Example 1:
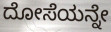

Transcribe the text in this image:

ದೋಸೆಯನ್ನೇ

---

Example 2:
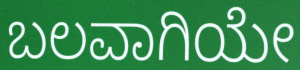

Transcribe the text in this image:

ಬಲವಾಗಿಯೇ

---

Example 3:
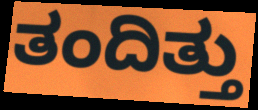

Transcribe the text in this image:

ತಂದಿತ್ತು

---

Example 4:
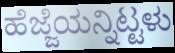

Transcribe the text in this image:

ಹೆಜ್ಜೆಯನ್ನಿಟ್ಟಳು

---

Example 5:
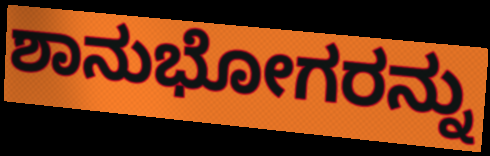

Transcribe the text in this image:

ಶಾನುಭೋಗರನ್ನು